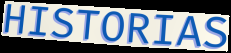
HISTORIAS